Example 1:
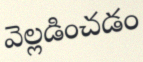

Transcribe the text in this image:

వెల్లడించడం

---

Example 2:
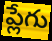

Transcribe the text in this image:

ప్లేగు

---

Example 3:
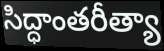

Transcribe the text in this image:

సిద్ధాంతరీత్యా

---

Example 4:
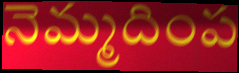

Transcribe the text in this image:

నెమ్మదింప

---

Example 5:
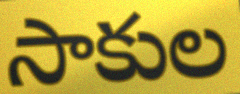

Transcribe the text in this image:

సాకుల